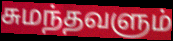
சுமந்தவளும்